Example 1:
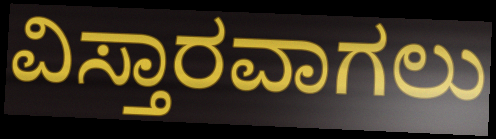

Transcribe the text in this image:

ವಿಸ್ತಾರವಾಗಲು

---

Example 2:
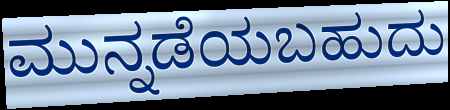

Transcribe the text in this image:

ಮುನ್ನಡೆಯಬಹುದು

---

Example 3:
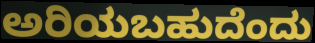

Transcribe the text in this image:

ಅರಿಯಬಹುದೆಂದು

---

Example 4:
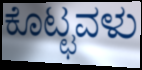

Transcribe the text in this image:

ಕೊಟ್ಟವಳು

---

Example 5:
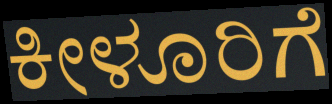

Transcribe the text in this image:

ಕೀಳೂರಿಗೆ